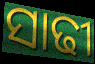
ସାଢୀ